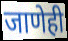
जाणेही